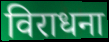
विराधना